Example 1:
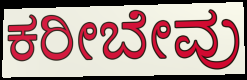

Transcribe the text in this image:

ಕರೀಬೇವು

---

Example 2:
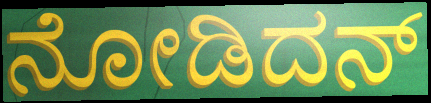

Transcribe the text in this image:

ನೋಡಿದನ್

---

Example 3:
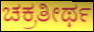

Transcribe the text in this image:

ಚಕ್ರತೀರ್ಥ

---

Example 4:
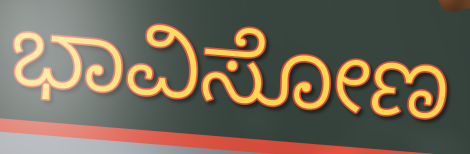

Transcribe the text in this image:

ಭಾವಿಸೋಣ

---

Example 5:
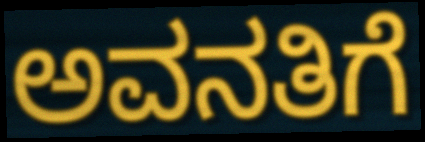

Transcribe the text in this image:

ಅವನತಿಗೆ